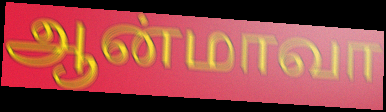
ஆன்மாவா